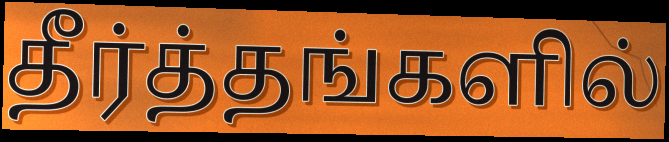
தீர்த்தங்களில்